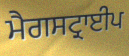
ਮੈਗਸਟ੍ਰਾਈਪ